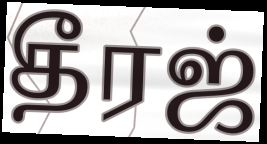
தீரஜ்